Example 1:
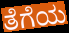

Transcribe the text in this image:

ತೆಗೆಯ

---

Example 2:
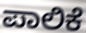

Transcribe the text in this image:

ಪಾಲಿಕೆ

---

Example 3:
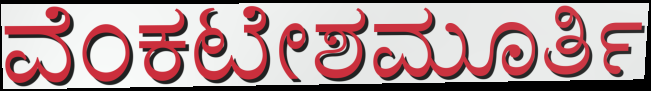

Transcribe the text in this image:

ವೆಂಕಟೇಶಮೂರ್ತಿ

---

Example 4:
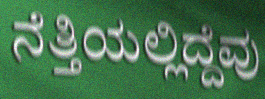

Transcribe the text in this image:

ನೆತ್ತಿಯಲ್ಲಿದ್ದೆವು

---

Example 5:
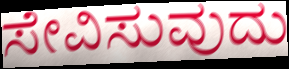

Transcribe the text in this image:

ಸೇವಿಸುವುದು